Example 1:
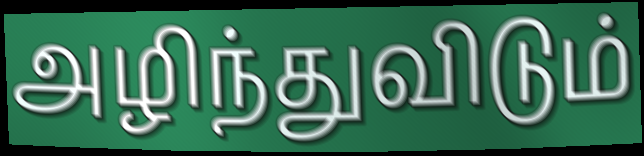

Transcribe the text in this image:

அழிந்துவிடும்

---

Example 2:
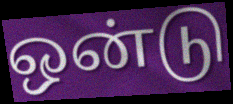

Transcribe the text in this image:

ஒன்டு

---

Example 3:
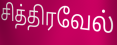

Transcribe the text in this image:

சித்திரவேல்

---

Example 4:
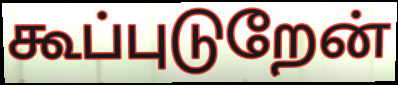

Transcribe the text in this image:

கூப்புடுறேன்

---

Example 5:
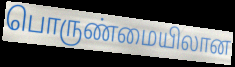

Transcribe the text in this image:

பொருண்மையிலான